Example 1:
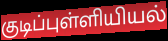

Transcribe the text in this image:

குடிப்புள்ளியியல்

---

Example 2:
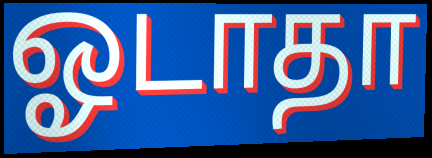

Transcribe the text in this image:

ஓடாதா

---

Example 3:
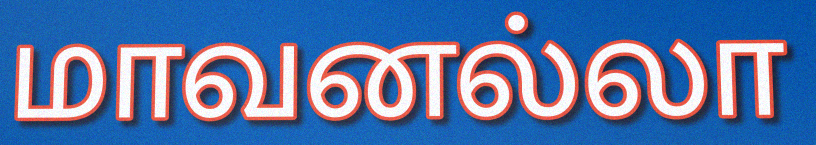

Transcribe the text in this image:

மாவனல்லா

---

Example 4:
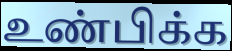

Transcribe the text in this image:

உண்பிக்க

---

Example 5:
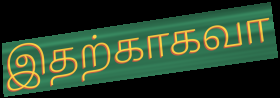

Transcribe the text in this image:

இதற்காகவா